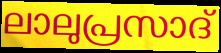
ലാലുപ്രസാദ്